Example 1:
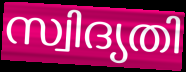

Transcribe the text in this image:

സ്വിദ്യതി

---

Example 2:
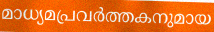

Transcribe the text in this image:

മാധ്യമപ്രവർത്തകനുമായ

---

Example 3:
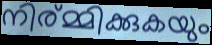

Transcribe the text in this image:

നിര്മ്മിക്കുകയും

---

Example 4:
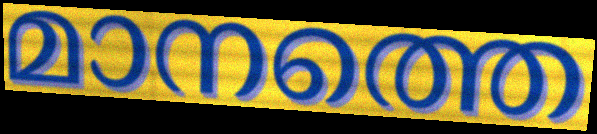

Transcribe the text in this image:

മാനത്തെ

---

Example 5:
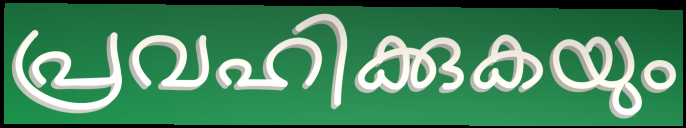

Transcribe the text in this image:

പ്രവഹിക്കുകയും